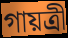
গায়ত্রী